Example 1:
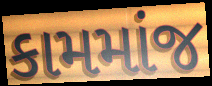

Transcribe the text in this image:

કામમાંજ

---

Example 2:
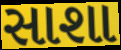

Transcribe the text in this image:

સાશા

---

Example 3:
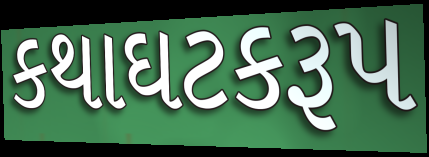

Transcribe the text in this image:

કથાઘટકરૂપ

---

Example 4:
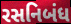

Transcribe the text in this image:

રસનિબંધ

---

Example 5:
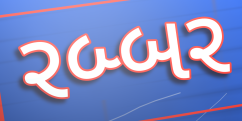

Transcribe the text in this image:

રબ્બર